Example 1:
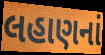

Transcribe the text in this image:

લહાણનાં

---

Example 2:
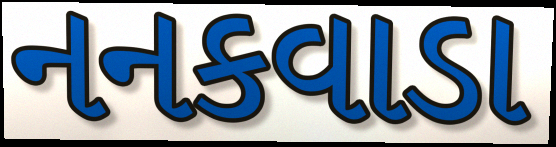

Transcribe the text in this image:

નનકવાડા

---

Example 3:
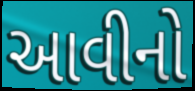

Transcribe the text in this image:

આવીનો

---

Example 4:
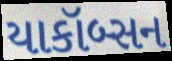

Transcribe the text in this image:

યાકૉબ્સન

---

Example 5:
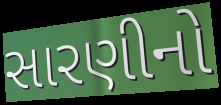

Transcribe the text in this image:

સારણીનો